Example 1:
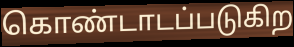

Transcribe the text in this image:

கொண்டாடப்படுகிற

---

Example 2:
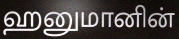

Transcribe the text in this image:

ஹனுமானின்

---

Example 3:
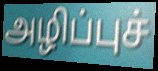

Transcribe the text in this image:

அழிப்புச்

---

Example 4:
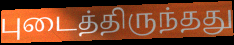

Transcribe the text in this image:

புடைத்திருந்தது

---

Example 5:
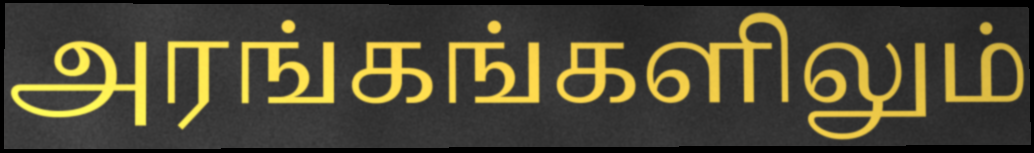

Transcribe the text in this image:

அரங்கங்களிலும்